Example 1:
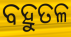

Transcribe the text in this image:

ବହୁତଳ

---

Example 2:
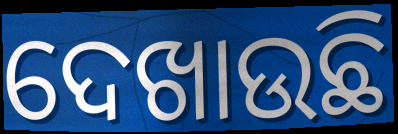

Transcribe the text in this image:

ଦେଖାଉଛି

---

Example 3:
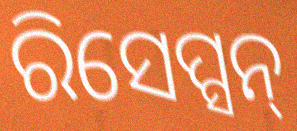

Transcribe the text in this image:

ରିସେପ୍ସନ୍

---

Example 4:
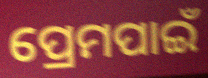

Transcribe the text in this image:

ପ୍ରେମପାଇଁ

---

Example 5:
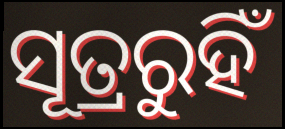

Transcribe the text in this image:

ସୂତ୍ରରୁହିଁ